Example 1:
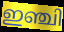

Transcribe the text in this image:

ഇഞ്ചി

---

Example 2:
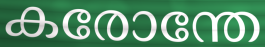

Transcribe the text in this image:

കരോന്തേ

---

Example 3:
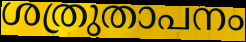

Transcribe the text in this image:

ശത്രുതാപനം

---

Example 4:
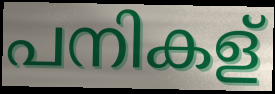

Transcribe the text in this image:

പനികള്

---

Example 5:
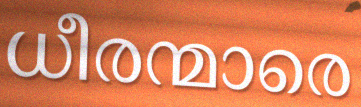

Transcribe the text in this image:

ധീരന്മാരെ